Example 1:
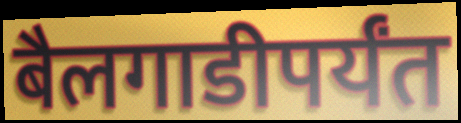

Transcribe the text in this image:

बैलगाडीपर्यंत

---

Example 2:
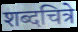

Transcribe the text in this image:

शब्दचित्रे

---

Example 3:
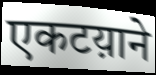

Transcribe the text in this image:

एकटय़ाने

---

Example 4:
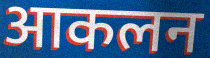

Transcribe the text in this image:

आकलन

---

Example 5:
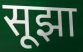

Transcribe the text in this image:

सूझा